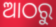
ଆଠରୁ